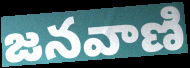
జనవాణి